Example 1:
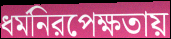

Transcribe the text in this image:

ধর্মনিরপেক্ষতায়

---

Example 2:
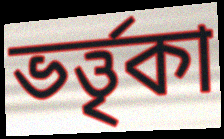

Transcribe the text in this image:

ভর্ত্তৃকা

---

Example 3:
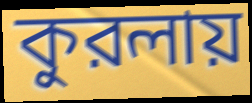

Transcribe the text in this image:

কুরলায়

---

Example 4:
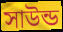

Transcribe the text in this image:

সাউন্ড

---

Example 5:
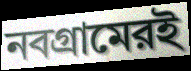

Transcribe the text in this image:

নবগ্রামেরই